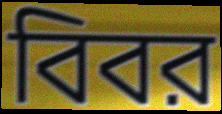
বিবর